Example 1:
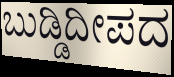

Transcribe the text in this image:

ಬುಡ್ಡಿದೀಪದ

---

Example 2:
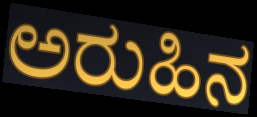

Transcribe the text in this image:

ಅರುಹಿನ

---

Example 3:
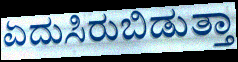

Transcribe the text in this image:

ಏದುಸಿರುಬಿಡುತ್ತಾ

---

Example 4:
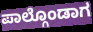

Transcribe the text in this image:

ಪಾಲ್ಗೊಂಡಾಗ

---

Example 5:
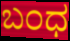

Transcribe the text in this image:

ಬಂಧ